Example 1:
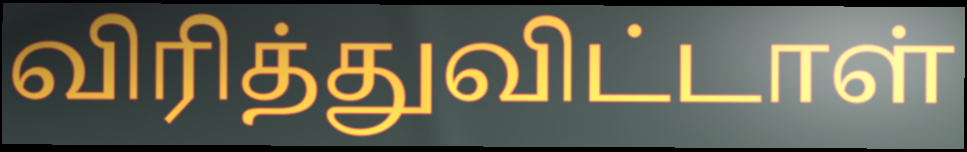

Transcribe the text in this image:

விரித்துவிட்டாள்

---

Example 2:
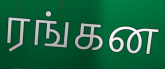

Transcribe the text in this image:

ரங்கன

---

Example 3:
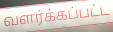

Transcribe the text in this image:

வளர்க்கப்பட்ட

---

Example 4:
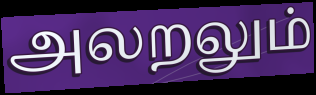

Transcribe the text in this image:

அலறலும்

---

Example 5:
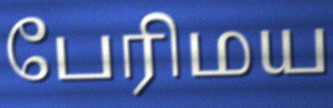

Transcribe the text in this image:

பேரிமய